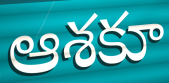
ఆశకూ